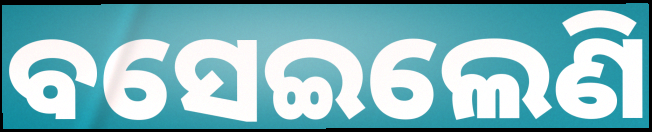
ବସେଇଲେଣି